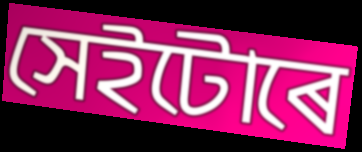
সেইটোৰে